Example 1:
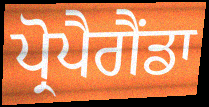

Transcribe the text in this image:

ਪ੍ਰੋਪੈਗੈਂਡਾ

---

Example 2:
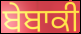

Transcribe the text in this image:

ਬੇਬਾਕੀ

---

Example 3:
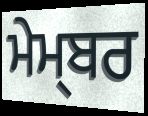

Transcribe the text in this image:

ਮੇਮ੍ਬਰ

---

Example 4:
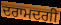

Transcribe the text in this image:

ਦਰਾਮਦਗੀ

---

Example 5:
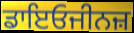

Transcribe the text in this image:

ਡਾਇਓਜੀਨਜ਼